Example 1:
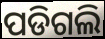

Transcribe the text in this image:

ପଡିଗଲି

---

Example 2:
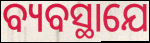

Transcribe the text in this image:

ବ୍ୟବସ୍ଥାଯେ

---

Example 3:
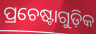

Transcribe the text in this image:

ପ୍ରଚେଷ୍ଟାଗୁଡ଼ିକ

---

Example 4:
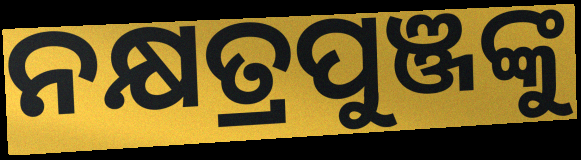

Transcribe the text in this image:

ନକ୍ଷତ୍ରପୁଞ୍ଜଙ୍କୁ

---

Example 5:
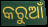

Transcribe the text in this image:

କରୁଆଁ